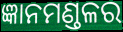
ଜ୍ଞାନମଣ୍ଡଳର